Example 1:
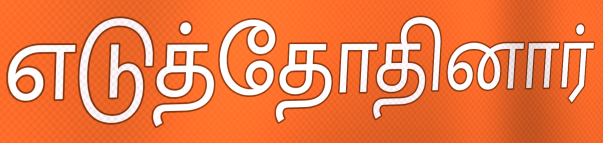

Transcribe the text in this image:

எடுத்தோதினார்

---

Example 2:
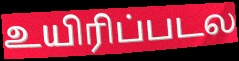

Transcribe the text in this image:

உயிரிப்படல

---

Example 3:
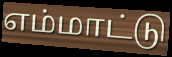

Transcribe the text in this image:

எம்மாட்டு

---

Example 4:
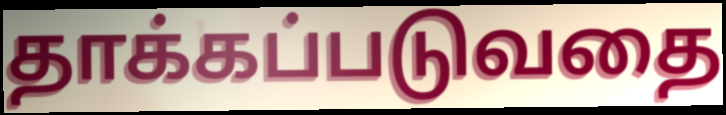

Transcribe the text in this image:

தாக்கப்படுவதை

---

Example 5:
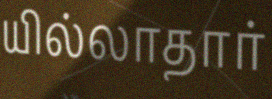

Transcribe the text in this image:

யில்லாதார்